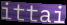
ittai